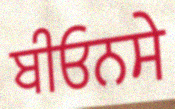
ਬੀਓਨਸੇ